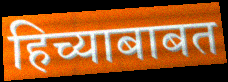
हिच्याबाबत